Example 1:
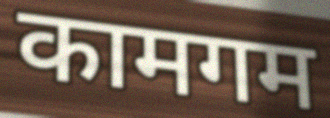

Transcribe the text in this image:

कामगम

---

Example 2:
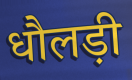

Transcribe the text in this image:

धौलड़ी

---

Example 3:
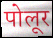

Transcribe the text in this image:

पोलूर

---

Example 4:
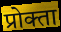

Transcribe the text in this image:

प्रोक्ता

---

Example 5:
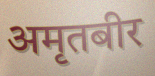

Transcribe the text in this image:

अमृतबीर